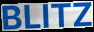
BLITZ